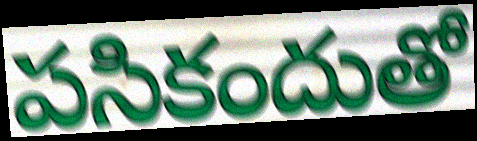
పసికందుతో